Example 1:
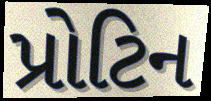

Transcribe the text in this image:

પ્રોટિન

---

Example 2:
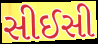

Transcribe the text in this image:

સીઈસી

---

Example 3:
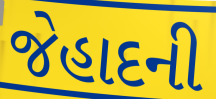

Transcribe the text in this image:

જેહાદની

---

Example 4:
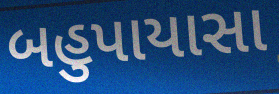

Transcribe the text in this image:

બહુપાયાસા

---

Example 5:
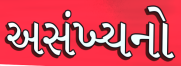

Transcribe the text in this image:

અસંખ્યનો